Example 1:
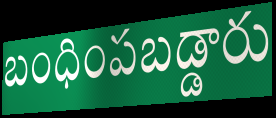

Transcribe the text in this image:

బంధింపబడ్డారు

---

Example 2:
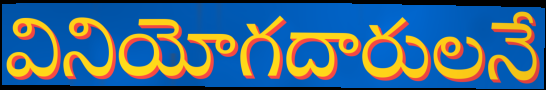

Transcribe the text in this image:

వినియోగదారులనే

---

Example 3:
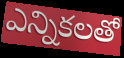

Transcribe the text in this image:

ఎన్నికలతో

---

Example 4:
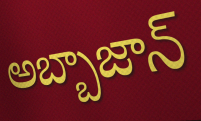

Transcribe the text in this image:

అబ్బాజాన్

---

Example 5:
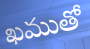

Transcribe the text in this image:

ఖముతో